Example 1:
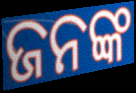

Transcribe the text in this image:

ଜନଙ୍କ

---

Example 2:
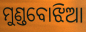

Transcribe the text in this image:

ମୁଣ୍ଡବୋଝିଆ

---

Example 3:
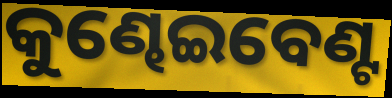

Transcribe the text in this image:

କୁଣ୍ଢେଇବେଣ୍ଟ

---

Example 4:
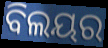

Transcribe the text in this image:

ବିଲୟର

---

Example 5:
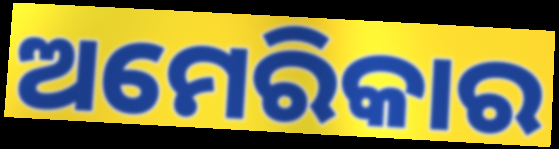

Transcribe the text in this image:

ଅମେରିକାର